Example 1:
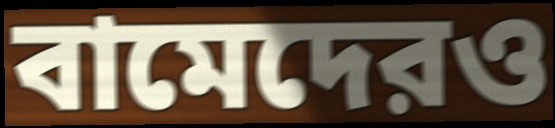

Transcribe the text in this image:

বামেদেরও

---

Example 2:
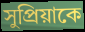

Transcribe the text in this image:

সুপ্রিয়াকে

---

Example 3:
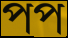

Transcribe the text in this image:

পপ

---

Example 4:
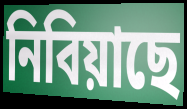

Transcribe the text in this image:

নিবিয়াছে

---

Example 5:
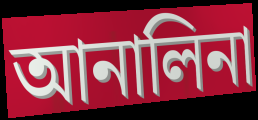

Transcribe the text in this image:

আনালিনা